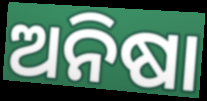
ଅନିଷା